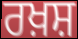
ਰਖ਼ਸ਼